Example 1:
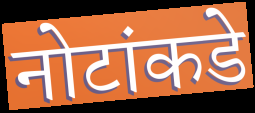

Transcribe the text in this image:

नोटांकडे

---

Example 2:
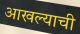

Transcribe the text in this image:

आखल्याची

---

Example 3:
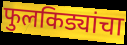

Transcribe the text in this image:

फुलकिड्यांचा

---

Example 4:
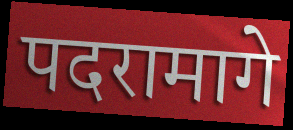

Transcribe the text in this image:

पदरामागे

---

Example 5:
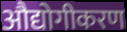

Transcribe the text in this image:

औद्योगीकरण